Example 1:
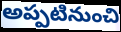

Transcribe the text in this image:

అప్పటినుంచి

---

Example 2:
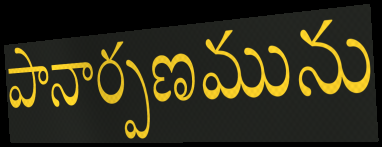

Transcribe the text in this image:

పానార్పణమును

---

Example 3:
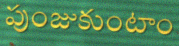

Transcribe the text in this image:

పుంజుకుంటాం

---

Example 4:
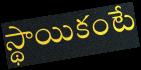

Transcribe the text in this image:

స్థాయికంటే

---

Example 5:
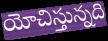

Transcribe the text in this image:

యోచిస్తున్నది